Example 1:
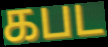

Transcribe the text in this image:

கபட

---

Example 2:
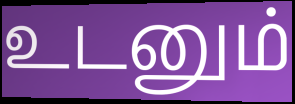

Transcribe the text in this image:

உடனும்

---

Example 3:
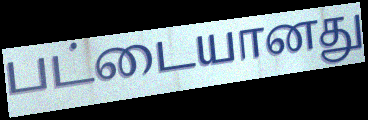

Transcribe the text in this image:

பட்டையானது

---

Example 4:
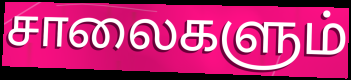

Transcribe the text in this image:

சாலைகளும்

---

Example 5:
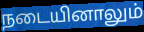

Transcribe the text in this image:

நடையினாலும்